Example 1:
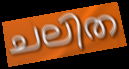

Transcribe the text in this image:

ചലിത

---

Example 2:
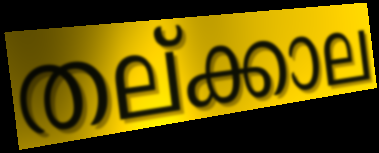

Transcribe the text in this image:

തല്ക്കാല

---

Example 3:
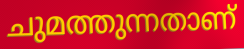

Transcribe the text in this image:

ചുമത്തുന്നതാണ്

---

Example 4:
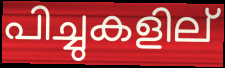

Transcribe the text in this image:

പിച്ചുകളില്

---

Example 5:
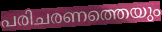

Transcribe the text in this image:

പരിചരണത്തെയും